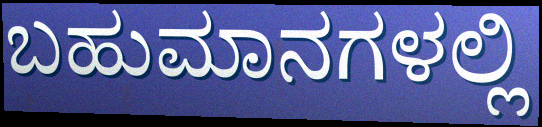
ಬಹುಮಾನಗಳಲ್ಲಿ